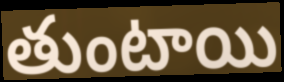
తుంటాయి